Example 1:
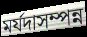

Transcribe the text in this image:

মৰ্যদাসম্পন্ন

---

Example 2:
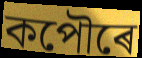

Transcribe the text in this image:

কপৌৰে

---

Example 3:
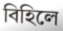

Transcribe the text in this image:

বিহিলে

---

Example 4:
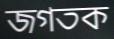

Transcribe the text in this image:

জগতক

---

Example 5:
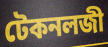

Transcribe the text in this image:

টেকনলজী